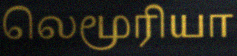
லெமூரியா